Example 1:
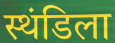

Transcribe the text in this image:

स्थंडिला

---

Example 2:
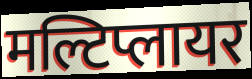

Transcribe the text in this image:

मल्टिप्लायर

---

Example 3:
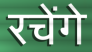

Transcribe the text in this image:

रचेंगे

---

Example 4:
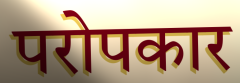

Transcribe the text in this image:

परोपकार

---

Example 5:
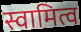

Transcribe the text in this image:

स्वामित्व